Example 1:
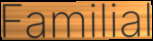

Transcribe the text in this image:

Familial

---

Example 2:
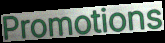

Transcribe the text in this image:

Promotions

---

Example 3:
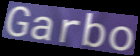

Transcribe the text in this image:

Garbo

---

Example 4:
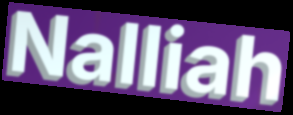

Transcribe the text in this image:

Nalliah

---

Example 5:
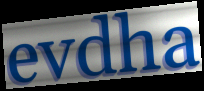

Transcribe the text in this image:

evdha